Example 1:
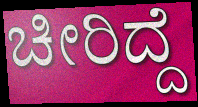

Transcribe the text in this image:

ಚೀರಿದ್ದೆ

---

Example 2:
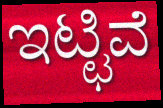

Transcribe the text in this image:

ಇಟ್ಟಿವೆ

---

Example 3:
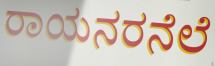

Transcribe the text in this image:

ರಾಯನರನೆಲೆ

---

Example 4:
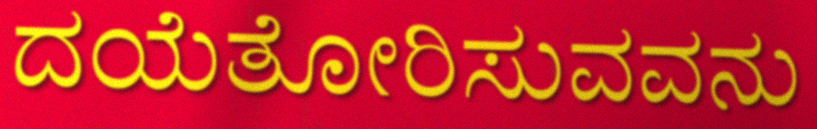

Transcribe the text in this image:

ದಯೆತೋರಿಸುವವನು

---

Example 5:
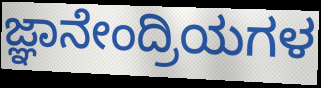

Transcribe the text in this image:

ಜ್ಞಾನೇಂದ್ರಿಯಗಳ